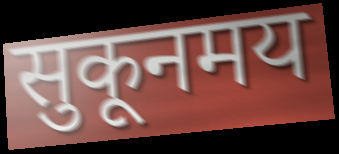
सुकूनमय